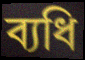
ব্যধি